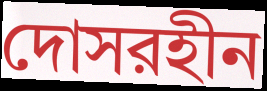
দোসরহীন